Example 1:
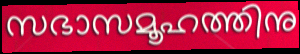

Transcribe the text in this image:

സഭാസമൂഹത്തിനു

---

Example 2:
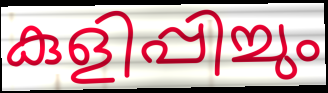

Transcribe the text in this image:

കുളിപ്പിച്ചും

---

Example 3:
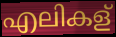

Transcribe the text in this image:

എലികള്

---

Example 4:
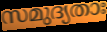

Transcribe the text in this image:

സമുദ്യതാഃ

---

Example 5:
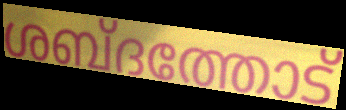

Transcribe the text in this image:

ശബ്ദത്തോട്